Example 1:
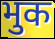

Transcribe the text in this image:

भुक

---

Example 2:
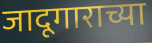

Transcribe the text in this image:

जादूगाराच्या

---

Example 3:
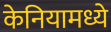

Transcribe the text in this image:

केनियामध्ये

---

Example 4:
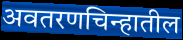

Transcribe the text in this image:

अवतरणचिन्हातील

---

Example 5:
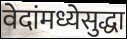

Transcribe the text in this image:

वेदांमध्येसुद्धा